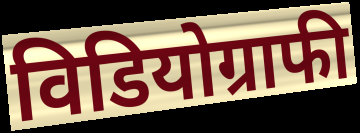
विडियोग्राफी